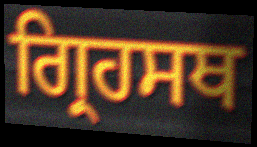
ਗ੍ਰਿਹਸਥ